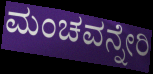
ಮಂಚವನ್ನೇರಿ